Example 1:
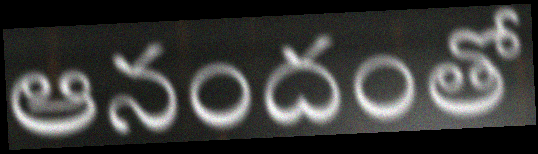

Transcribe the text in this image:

ఆనందంతో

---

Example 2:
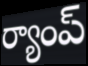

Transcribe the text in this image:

ర్యాంప్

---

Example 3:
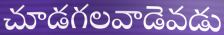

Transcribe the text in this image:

చూడగలవాడెవడు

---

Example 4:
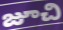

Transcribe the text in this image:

జూచి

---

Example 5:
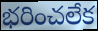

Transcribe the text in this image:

భరించలేక